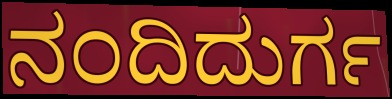
ನಂದಿದುರ್ಗ